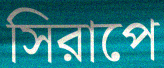
সিরাপে